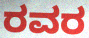
ರವರ